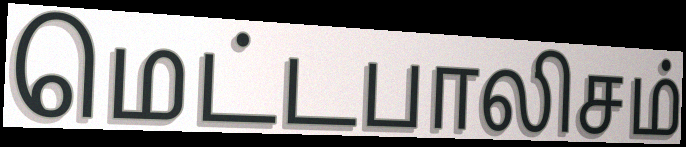
மெட்டபாலிசம்